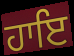
ਹਾਇ